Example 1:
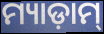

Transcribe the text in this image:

ମ୍ୟାଡ଼ାମ୍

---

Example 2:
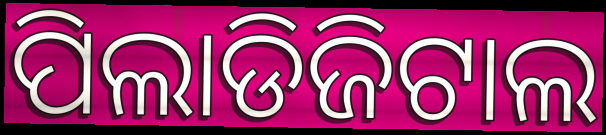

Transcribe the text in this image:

ପିଲାଡିଜିଟାଲ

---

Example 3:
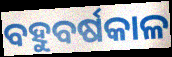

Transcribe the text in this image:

ବହୁବର୍ଷକାଳ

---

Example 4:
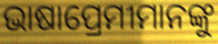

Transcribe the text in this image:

ଭାଷାପ୍ରେମୀମାନଙ୍କୁ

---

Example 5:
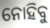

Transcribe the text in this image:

ନୋହିବୁ